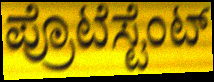
ಪ್ರೊಟೆಸ್ಟೆಂಟ್